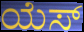
ಯೆಸ್